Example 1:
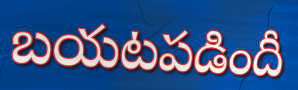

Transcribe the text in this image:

బయటపడిందీ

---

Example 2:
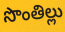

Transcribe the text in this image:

సొంతిల్లు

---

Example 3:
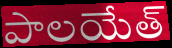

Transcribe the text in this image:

పాలయేత్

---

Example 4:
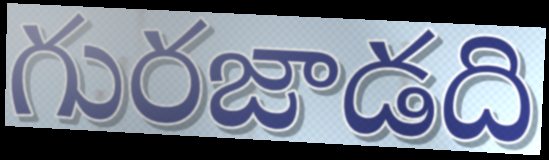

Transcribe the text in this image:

గురజాడది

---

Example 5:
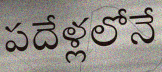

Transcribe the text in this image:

పదేళ్లలోనే